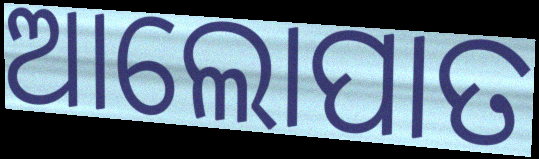
ଆଲୋପାତ